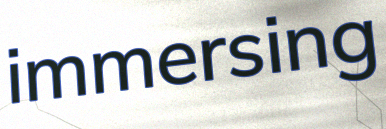
immersing